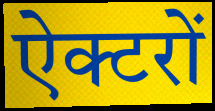
ऐक्टरों